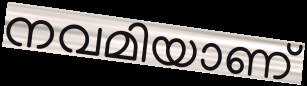
നവമിയാണ്